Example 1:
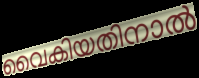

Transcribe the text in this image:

വൈകിയതിനാൽ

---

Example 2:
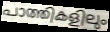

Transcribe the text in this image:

പാത്തികളിലും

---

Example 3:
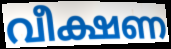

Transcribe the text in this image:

വീക്ഷണ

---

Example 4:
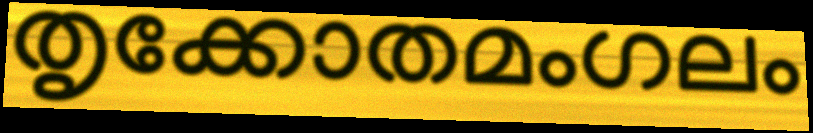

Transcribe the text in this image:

തൃക്കോതമംഗലം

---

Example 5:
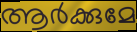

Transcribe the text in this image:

ആർക്കുമേ